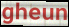
gheun